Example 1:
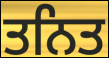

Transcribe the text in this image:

ਤਨਿਤ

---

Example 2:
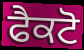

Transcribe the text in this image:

ਫੈਕਟੋ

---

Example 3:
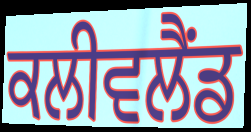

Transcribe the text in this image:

ਕਲੀਵਲੈਂਡ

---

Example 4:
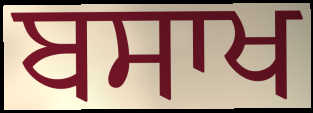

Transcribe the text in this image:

ਬਸਾਖ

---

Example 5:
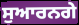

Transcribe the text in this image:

ਸੁਆਰਨਗੇ